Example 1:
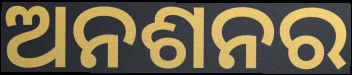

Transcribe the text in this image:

ଅନଶନର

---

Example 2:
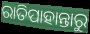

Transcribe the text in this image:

ରାତିପାହାନ୍ତାରୁ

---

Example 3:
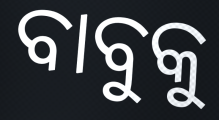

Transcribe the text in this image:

ବାବୁକୁ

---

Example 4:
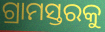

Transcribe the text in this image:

ଗ୍ରାମସ୍ତରକୁ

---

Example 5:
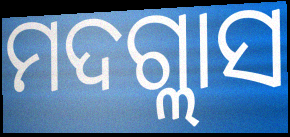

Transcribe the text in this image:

ମଦଗ୍ଲାସ